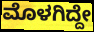
ಮೊಳಗಿದ್ದೇ